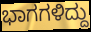
ಭಾಗಗಳಿದ್ದು